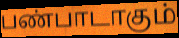
பண்பாடாகும்